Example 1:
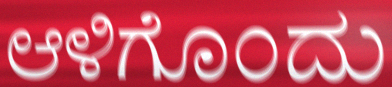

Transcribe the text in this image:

ಆಳಿಗೊಂದು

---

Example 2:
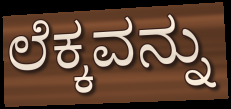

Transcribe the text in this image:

ಲೆಕ್ಕವನ್ನು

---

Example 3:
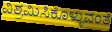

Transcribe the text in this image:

ವಿಶ್ರಮಿಸಿಕೊಳ್ಳುವಂತೆ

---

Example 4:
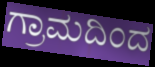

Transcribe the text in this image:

ಗ್ರಾಮದಿಂದ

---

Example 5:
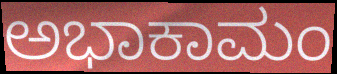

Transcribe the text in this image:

ಅಭಾಕಾಮಂ